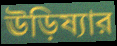
ঊড়িষ্যার